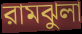
রামঝুলা